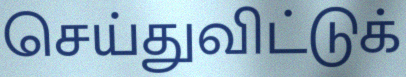
செய்துவிட்டுக்